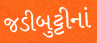
જડીબુટ્ટીનાં